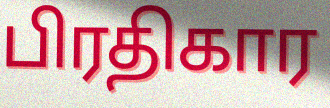
பிரதிகார